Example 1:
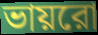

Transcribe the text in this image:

ভায়রো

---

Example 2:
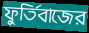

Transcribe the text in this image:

ফুর্তিবাজের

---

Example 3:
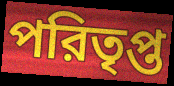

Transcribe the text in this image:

পরিতৃপ্ত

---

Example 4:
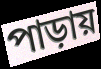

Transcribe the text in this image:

পাড়ায়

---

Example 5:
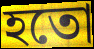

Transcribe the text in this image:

হতো